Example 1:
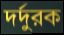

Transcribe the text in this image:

দর্দুরক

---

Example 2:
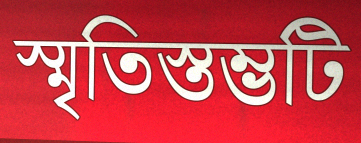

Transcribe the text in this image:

স্মৃতিস্তম্ভটি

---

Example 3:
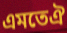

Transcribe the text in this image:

এমতেঐ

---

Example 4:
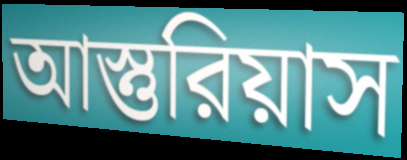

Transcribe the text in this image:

আস্তুরিয়াস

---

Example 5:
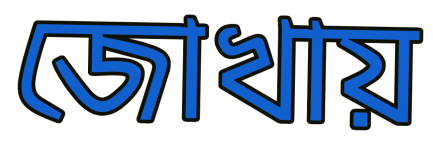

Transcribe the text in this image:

জোখায়